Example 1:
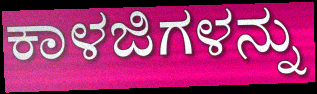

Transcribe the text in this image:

ಕಾಳಜಿಗಳನ್ನು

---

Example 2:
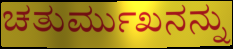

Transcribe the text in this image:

ಚತುರ್ಮುಖನನ್ನು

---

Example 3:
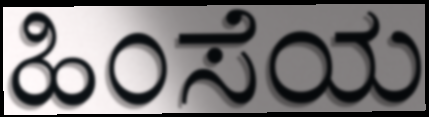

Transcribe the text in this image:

ಹಿಂಸೆಯ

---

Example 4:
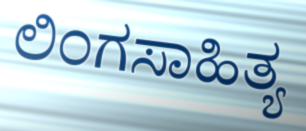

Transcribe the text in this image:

ಲಿಂಗಸಾಹಿತ್ಯ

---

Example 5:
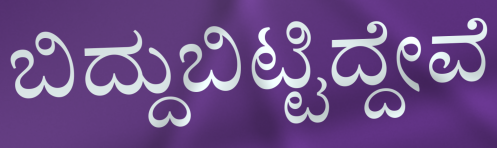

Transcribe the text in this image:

ಬಿದ್ದುಬಿಟ್ಟಿದ್ದೇವೆ